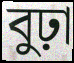
বুঢ়া